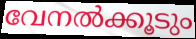
വേനൽക്കൂടും